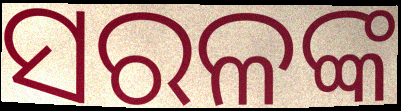
ସରଳଙ୍କ